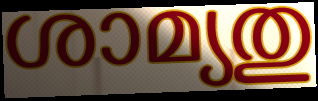
ശാമ്യതു